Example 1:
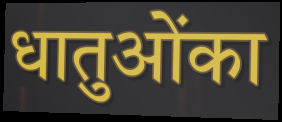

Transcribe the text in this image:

धातुओंका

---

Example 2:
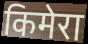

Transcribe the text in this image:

किमेरा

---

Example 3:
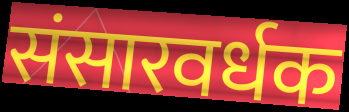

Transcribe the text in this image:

संसारवर्धक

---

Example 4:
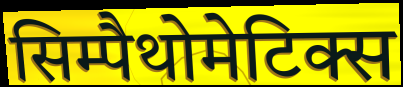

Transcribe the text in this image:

सिम्पैथोमेटिक्स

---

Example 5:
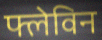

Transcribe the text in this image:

फ्लेविन